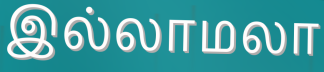
இல்லாமலா